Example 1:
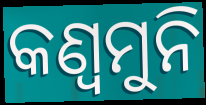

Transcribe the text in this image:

କଣ୍ୱମୁନି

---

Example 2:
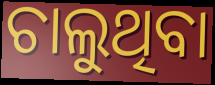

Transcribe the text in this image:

ଚାଲୁଥିବା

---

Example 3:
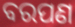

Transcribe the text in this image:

ବରପଣ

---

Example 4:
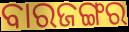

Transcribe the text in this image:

ବାରଜଙ୍ଗର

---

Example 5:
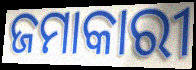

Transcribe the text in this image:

ଜମାକାରୀ